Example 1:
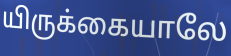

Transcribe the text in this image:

யிருக்கையாலே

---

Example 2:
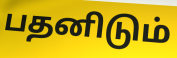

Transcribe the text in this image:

பதனிடும்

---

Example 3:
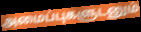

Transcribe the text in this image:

அமைப்புகளுடனும்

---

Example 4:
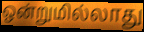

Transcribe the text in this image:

ஒன்றுமில்லாது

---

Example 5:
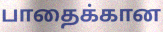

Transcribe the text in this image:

பாதைக்கான